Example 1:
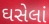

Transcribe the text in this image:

ઘસેલાં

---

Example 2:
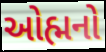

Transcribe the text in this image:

ઓહ્મનો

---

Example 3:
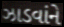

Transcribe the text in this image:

ઝાડવાંને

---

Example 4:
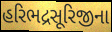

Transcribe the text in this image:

હરિભદ્રસૂરિજીના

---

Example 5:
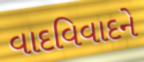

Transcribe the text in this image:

વાદવિવાદને